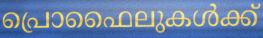
പ്രൊഫൈലുകൾക്ക്